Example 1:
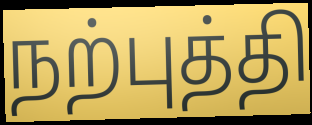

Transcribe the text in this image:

நற்புத்தி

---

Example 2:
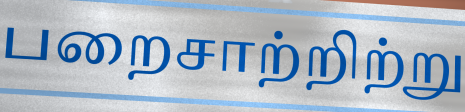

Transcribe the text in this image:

பறைசாற்றிற்று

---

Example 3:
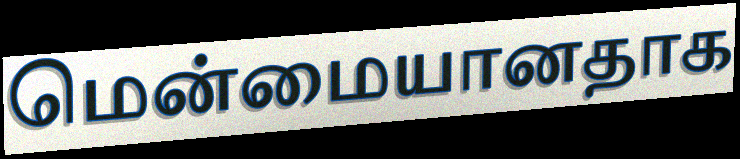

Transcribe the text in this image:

மென்மையானதாக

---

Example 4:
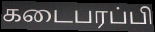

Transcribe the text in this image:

கடைபரப்பி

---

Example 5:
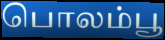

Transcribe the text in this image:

பொலம்பூ